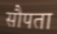
सौपता